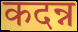
कदन्न